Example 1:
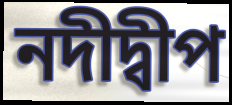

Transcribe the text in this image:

নদীদ্বীপ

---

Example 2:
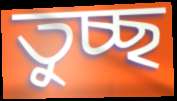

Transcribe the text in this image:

তুচ্ছ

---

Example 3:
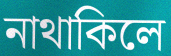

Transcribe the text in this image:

নাথাকিলে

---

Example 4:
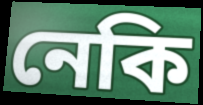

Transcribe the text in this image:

নেকি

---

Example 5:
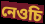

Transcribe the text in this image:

নেওচি